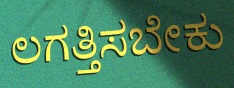
ಲಗತ್ತಿಸಬೇಕು